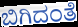
ಬಿಗಿದಂತೆ